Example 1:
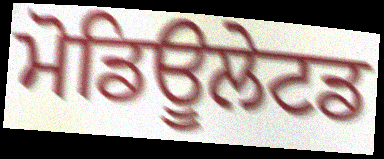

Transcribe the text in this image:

ਮੋਡਿਊਲੇਟਡ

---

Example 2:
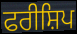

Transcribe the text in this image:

ਫਰੀਸ਼ਿਪ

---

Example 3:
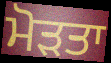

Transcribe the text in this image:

ਮੋੜਤਾ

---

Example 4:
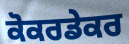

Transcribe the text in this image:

ਕੋਕਰਡੇਕਰ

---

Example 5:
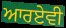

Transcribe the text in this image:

ਆਰਏਵੀ